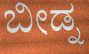
ಬೀಡ್ನ